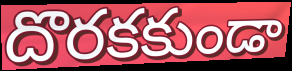
దొరకకుండా